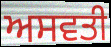
ਅਸਵਤੀ